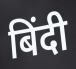
बिंदी